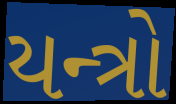
યન્ત્રો